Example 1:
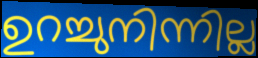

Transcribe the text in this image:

ഉറച്ചുനിന്നില്ല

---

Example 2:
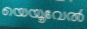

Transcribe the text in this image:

യെയൂവേൽ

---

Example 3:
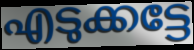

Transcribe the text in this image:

എടുക്കട്ടേ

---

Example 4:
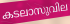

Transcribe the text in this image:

കടലാസുവില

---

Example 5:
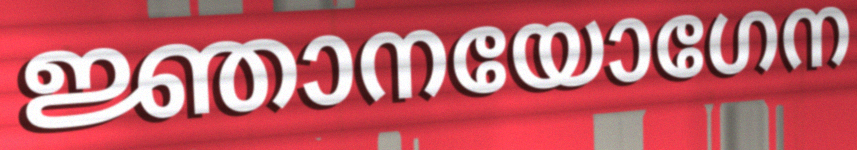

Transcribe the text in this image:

ജ്ഞാനയോഗേന